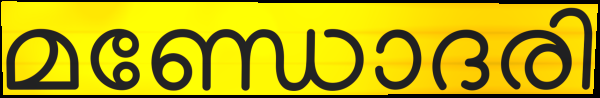
മണ്ഡോദരി